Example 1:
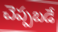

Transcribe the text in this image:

చెప్పబడే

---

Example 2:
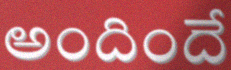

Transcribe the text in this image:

అందిందే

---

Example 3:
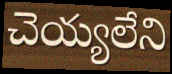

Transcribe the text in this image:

చెయ్యలేని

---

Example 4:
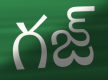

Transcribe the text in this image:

గజ్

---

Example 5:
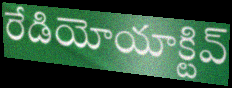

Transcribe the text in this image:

రేడియోయాక్టివ్